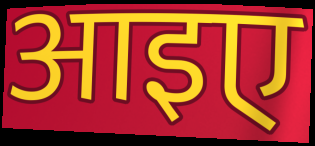
आइए